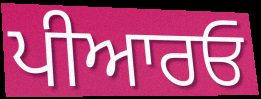
ਪੀਆਰਓ